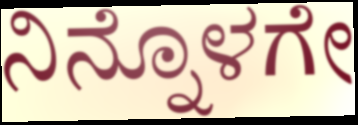
ನಿನ್ನೊಳಗೇ